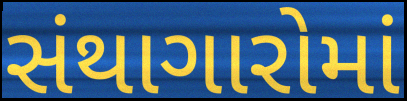
સંથાગારોમાં